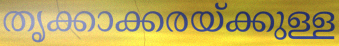
തൃക്കാക്കരയ്ക്കുള്ള